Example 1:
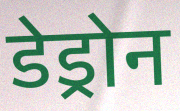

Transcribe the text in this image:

डेड्रोन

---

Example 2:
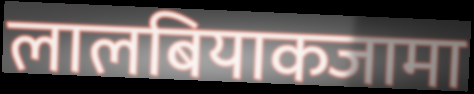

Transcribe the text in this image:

लालबियाकजामा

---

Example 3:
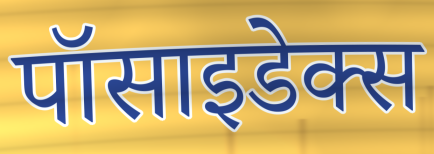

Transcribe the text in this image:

पॉसाइडेक्स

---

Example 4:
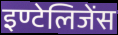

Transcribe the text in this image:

इण्टेलिजेंस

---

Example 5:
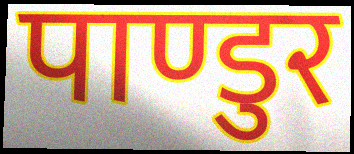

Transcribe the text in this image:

पाण्डुर